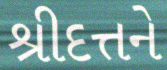
શ્રીદત્તને